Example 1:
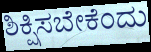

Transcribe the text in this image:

ಶಿಕ್ಷಿಸಬೇಕೆಂದು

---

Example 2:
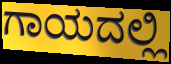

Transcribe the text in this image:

ಗಾಯದಲ್ಲಿ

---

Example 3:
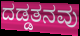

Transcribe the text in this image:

ದಡ್ಡತನವು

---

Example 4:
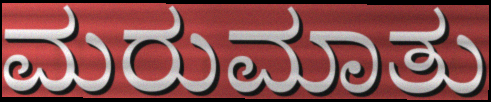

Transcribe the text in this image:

ಮರುಮಾತು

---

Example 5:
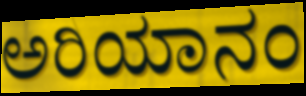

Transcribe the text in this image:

ಅರಿಯಾನಂ